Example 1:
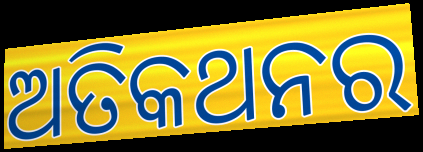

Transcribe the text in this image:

ଅତିକଥନର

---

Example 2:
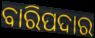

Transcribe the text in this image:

ବାରିପଦାର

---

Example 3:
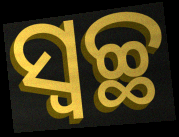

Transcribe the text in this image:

ସ୍ବଚ୍ଛ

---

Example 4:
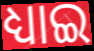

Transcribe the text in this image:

ଧ୍ୟାଇ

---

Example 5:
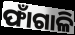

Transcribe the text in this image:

ଫାଁଗାଳି